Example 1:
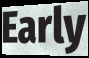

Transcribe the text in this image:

Early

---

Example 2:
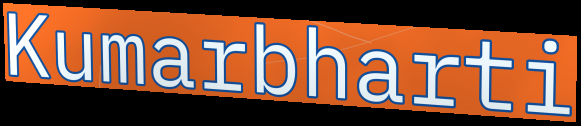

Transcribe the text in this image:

Kumarbharti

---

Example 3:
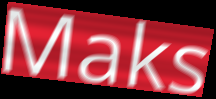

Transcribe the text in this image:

Maks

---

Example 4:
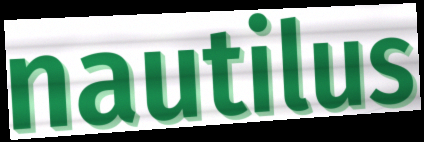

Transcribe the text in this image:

nautilus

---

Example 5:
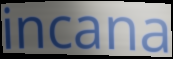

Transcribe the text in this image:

incana